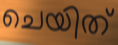
ചെയിത്